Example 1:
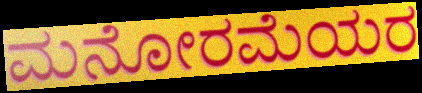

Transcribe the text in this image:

ಮನೋರಮೆಯರ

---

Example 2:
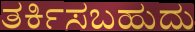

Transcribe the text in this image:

ತರ್ಕಿಸಬಹುದು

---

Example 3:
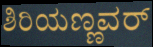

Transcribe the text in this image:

ಶಿರಿಯಣ್ಣವರ್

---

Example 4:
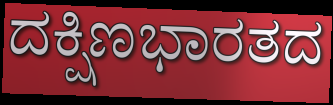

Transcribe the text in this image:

ದಕ್ಷಿಣಭಾರತದ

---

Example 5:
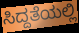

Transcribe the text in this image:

ಸಿದ್ದತೆಯಲ್ಲಿ